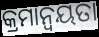
କ୍ରମାନ୍ବୟତା